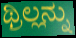
ಥ್ರಿಲ್ಲನ್ನು